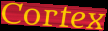
Cortex